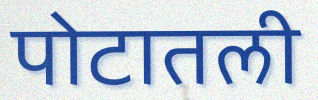
पोटातली